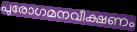
പുരോഗമനവീക്ഷണം